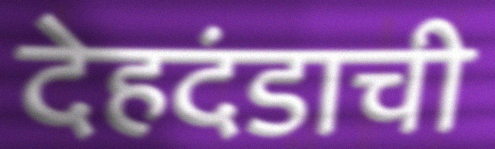
देहदंडाची